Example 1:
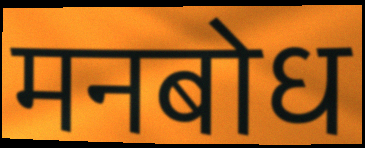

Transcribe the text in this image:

मनबोध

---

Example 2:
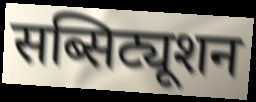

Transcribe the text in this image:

सब्सिट्यूशन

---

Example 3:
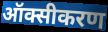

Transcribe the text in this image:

ऑक्सीकरण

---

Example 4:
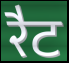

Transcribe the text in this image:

रैट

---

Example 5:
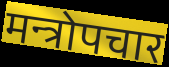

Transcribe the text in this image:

मन्त्रोपचार